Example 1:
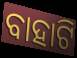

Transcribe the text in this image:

ବାହାଟି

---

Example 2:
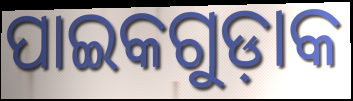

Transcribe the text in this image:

ପାଇକଗୁଡ଼ାକ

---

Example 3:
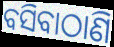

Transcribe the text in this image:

ବସିବାଠାଣି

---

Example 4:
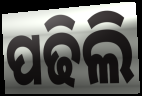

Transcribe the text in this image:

ପଢିଲି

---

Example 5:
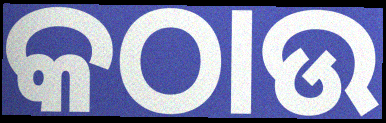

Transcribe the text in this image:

କଠାଉ